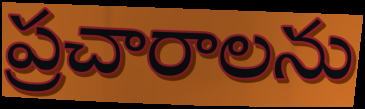
ప్రచారాలను